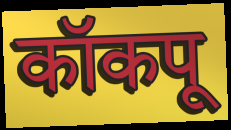
कॉकपू